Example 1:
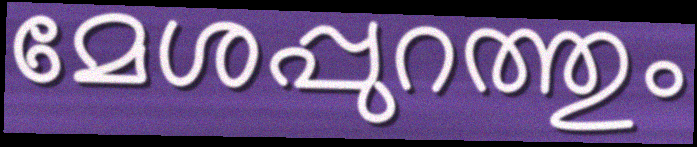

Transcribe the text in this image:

മേശപ്പുറത്തും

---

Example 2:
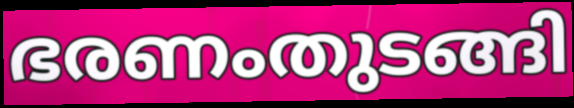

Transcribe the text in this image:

ഭരണംതുടങ്ങി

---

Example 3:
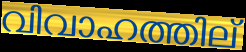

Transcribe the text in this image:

വിവാഹത്തില്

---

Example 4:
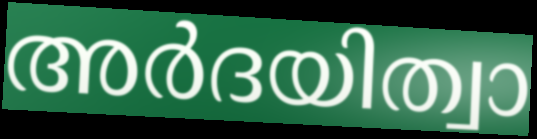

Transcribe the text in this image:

അർദയിത്വാ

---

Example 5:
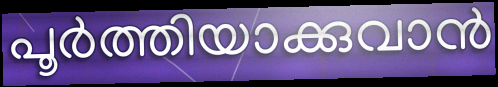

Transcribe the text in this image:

പൂർത്തിയാക്കുവാൻ